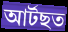
আৰ্টছত